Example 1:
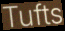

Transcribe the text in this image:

Tufts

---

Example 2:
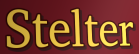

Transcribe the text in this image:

Stelter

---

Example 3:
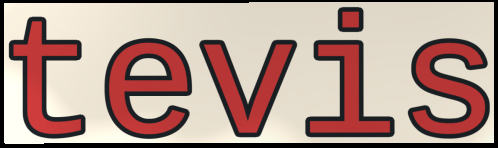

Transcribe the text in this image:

tevis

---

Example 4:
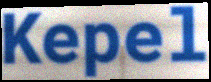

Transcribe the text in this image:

Kepel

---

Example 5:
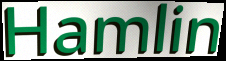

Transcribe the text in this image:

Hamlin